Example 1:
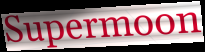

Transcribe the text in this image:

Supermoon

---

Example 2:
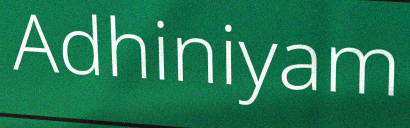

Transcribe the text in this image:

Adhiniyam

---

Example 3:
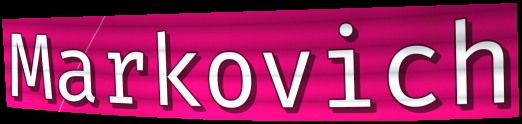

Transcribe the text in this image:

Markovich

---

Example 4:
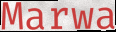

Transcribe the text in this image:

Marwa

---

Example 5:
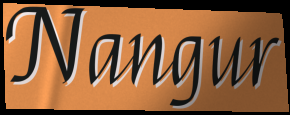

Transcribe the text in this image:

Nangur